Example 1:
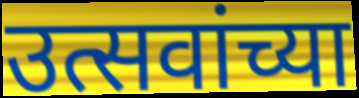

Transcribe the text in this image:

उत्सवांच्या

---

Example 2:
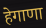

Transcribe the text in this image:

हेगाणा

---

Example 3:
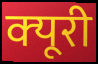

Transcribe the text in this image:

क्यूरी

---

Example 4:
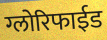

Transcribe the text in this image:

ग्लोरिफाईड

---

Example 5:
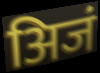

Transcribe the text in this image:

अिजं